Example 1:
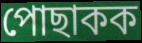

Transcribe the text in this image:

পোছাকক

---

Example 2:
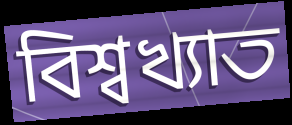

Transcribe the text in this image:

বিশ্বখ্যাত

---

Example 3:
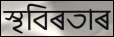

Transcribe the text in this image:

স্থবিৰতাৰ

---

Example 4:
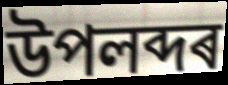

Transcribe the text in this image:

উপলব্দৰ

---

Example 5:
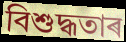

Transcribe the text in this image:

বিশুদ্ধতাৰ